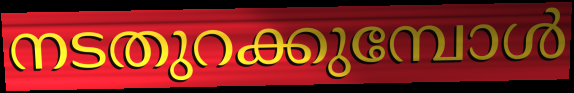
നടതുറക്കുമ്പോൾ